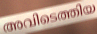
അവിടെത്തിയ